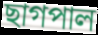
ছাগপাল